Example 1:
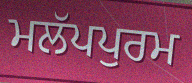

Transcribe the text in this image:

ਮਲੱਪਪੁਰਮ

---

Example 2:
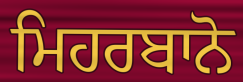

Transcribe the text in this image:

ਮਿਹਰਬਾਨੋ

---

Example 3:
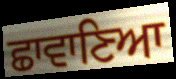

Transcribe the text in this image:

ਛਾਵਾਣਿਆ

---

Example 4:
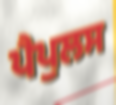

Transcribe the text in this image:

ਪੈਪੁਲਸ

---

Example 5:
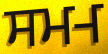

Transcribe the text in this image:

ਸਮ੍ਮ